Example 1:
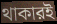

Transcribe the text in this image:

থাকারই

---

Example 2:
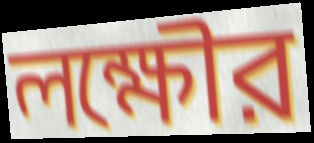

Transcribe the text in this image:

লক্ষৌর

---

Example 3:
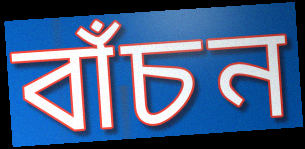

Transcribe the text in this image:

বাঁচন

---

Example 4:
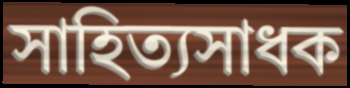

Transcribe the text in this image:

সাহিত্যসাধক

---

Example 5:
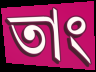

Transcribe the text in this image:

তাং